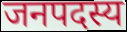
जनपदस्य